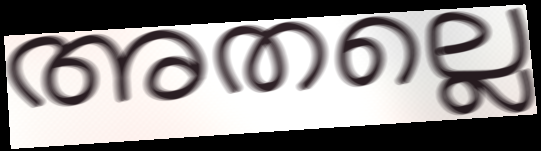
അതല്ലെ